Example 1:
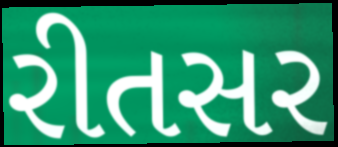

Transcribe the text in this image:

રીતસર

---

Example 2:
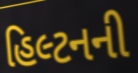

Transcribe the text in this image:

હિલ્ટનની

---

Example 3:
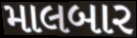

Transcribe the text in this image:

માલબાર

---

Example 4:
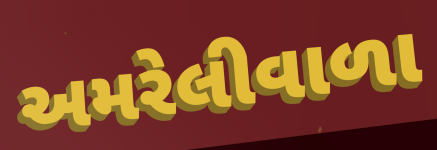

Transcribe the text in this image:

અમરેલીવાળા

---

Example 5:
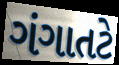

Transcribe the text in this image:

ગંગાતટે